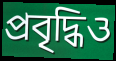
প্রবৃদ্ধিও